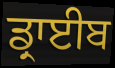
ਡ੍ਰਾਈਬ